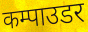
कम्पाउडर